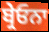
ਬ੍ਰੇਓਨਾ